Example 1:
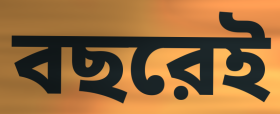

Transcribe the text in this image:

বছরেই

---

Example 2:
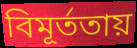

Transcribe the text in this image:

বিমূর্ততায়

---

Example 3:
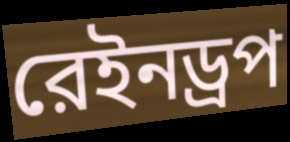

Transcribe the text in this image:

রেইনড্রপ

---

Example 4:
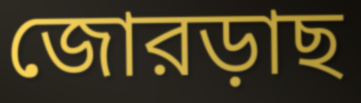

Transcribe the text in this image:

জোরড়াছ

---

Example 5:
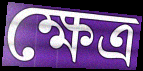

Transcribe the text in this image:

ক্ষেত্র